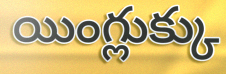
యింగ్లుక్కు